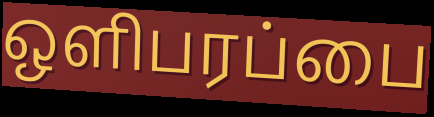
ஒளிபரப்பை